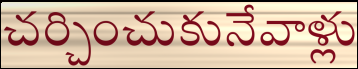
చర్చించుకునేవాళ్లు